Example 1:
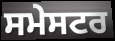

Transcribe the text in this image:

ਸਮੇਸਟਰ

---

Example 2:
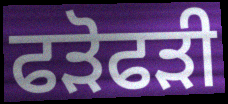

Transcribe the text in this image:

ਫੜੋਫੜੀ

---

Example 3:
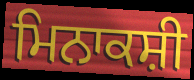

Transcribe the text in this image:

ਮਿਨਾਕਸ਼ੀ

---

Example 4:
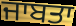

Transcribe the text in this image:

ਜਾਬਤਾ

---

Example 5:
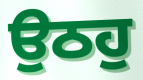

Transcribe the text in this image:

ਉਠਹੁ